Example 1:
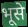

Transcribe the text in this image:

भूसे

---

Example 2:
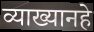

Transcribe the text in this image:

व्याख्यानहे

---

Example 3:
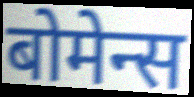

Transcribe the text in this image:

बोमेन्स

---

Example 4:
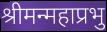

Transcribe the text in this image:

श्रीमन्महाप्रभु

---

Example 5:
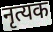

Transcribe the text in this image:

नृत्यक